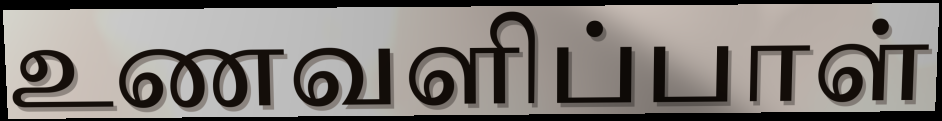
உணவளிப்பாள்